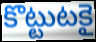
కొట్టుటకై